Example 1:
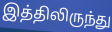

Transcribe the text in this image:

இத்திலிருந்து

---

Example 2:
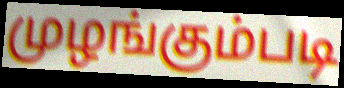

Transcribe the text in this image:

முழங்கும்படி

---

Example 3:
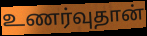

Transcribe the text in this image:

உணர்வுதான்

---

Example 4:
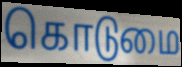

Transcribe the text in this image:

கொடுமை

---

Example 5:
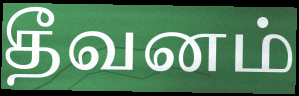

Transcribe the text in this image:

தீவனம்